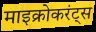
माइक्रोकरंट्स